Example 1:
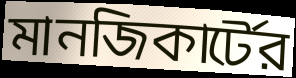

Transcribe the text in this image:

মানজিকার্টের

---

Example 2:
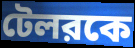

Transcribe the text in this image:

টেলরকে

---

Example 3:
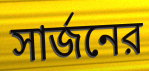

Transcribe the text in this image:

সার্জনের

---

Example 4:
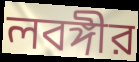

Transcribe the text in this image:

লবঙ্গীর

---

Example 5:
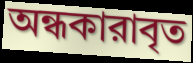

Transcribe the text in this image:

অন্ধকারাবৃত